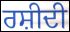
ਰਸ਼ੀਦੀ